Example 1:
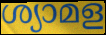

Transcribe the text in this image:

ശ്യാമള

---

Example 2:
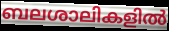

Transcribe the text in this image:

ബലശാലികളിൽ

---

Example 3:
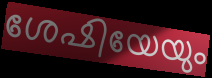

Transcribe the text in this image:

ശേഷിയേയും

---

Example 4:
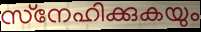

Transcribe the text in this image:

സ്‌നേഹിക്കുകയും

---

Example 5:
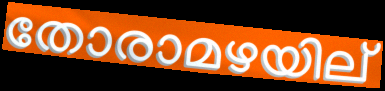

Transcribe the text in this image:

തോരാമഴയില്